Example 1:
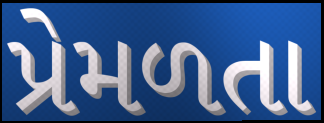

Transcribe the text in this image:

પ્રેમળતા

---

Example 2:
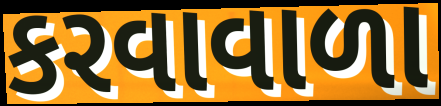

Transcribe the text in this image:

કરવાવાળા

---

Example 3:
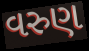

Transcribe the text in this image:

વરુણ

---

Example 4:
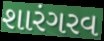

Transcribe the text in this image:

શારંગરવ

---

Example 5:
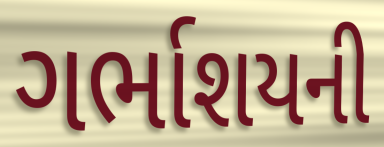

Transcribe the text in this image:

ગર્ભાશયની